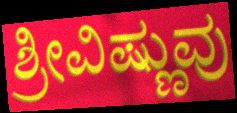
ಶ್ರೀವಿಷ್ಣುವು